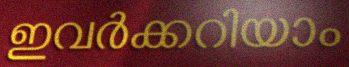
ഇവർക്കറിയാം